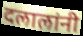
दलालांनी